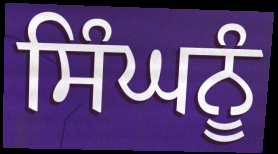
ਸਿੰਘਨੂੰ